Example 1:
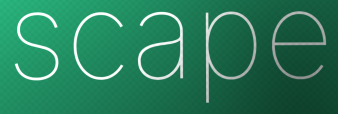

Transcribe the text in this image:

scape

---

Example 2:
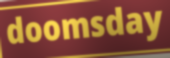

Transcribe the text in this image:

doomsday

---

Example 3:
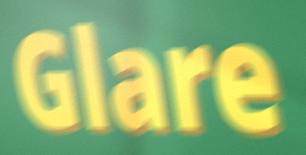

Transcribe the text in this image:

Glare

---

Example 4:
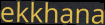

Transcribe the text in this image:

ekkhana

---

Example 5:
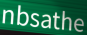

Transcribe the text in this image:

nbsathe